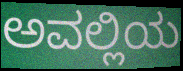
ಅವಲ್ಲಿಯ